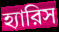
হ্যারিস